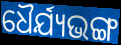
ଧୈର୍ଯ୍ୟଭଙ୍ଗ